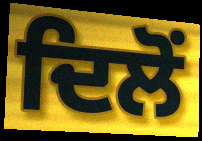
ਦਿਲੋਂ